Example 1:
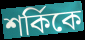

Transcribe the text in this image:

শর্কিকে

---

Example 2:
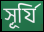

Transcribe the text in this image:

সূর্যি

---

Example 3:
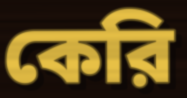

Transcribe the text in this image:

কেরি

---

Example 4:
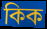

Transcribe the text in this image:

কিক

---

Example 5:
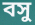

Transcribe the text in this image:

বসু